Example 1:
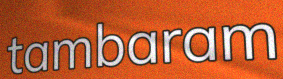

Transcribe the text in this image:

tambaram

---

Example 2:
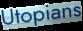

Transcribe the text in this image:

Utopians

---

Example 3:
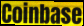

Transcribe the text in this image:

Coinbase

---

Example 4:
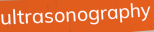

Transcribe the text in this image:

ultrasonography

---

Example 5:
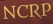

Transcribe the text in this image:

NCRP